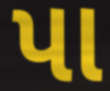
પા